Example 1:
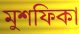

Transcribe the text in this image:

মুশফিকা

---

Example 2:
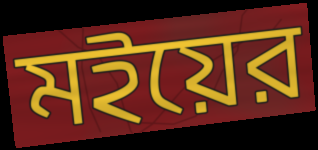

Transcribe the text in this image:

মইয়ের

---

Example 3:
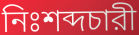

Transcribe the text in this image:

নিঃশব্দচারী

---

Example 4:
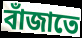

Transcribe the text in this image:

বাঁজাতে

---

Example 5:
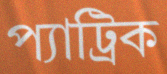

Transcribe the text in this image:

প্যাট্রিক